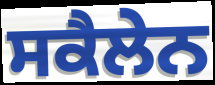
ਸਕੈਲੇਨ